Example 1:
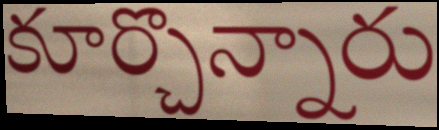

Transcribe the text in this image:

కూర్చొన్నారు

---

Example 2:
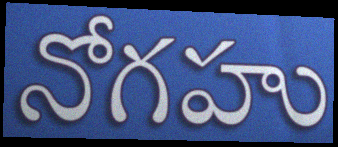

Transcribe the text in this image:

నోగహు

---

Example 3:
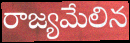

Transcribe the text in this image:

రాజ్యమేలిన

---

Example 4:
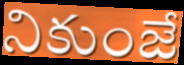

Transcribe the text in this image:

నికుంజే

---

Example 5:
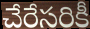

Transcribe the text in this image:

చేరేసరికీ